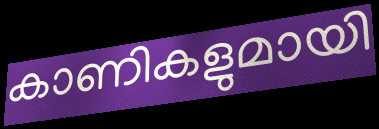
കാണികളുമായി